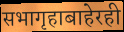
सभागृहाबाहेरही